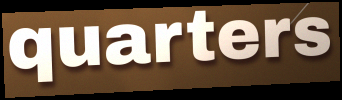
quarters